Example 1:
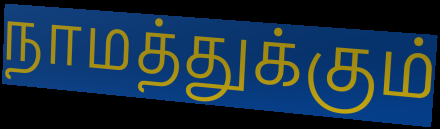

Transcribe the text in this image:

நாமத்துக்கும்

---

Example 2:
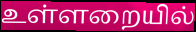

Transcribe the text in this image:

உள்ளறையில்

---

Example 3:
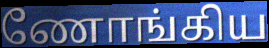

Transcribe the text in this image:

ணோங்கிய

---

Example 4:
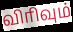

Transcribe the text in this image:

விரிவும்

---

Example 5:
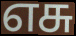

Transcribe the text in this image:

எசு